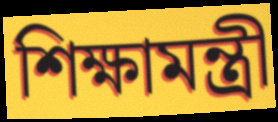
শিক্ষামন্ত্রী